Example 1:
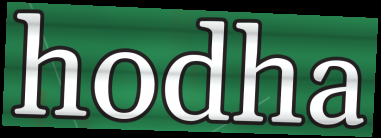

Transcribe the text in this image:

hodha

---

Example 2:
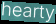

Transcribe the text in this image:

hearty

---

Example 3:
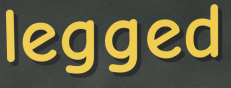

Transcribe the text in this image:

legged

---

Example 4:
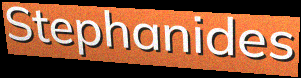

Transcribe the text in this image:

Stephanides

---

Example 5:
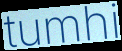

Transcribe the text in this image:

tumhi